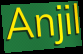
Anjil